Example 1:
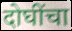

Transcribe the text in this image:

दोघींचा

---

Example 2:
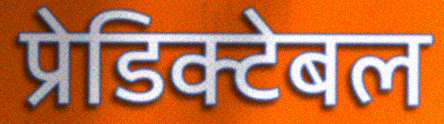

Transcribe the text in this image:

प्रेडिक्टेबल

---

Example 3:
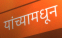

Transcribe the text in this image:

यांच्यामधून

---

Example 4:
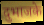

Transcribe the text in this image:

दुभाजके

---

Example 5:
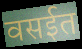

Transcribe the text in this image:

वसईत